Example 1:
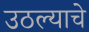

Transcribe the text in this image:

उठल्याचे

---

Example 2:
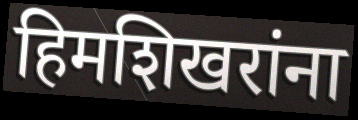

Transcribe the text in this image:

हिमशिखरांना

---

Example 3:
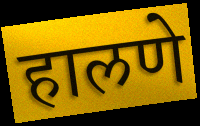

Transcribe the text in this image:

हालणे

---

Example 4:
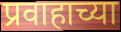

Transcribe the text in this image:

प्रवाहाच्या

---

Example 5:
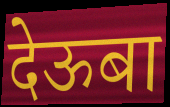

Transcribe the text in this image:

देऊबा